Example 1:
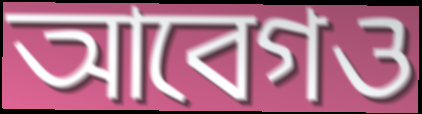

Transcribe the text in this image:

আবেগও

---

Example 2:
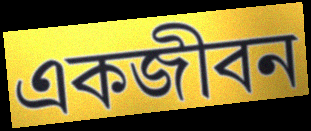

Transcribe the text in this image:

একজীবন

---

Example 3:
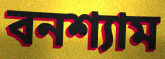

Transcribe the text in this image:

বনশ্যাম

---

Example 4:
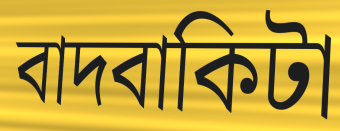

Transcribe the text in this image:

বাদবাকিটা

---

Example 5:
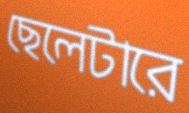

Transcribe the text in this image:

ছেলেটারে